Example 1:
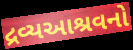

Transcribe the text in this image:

દ્રવ્યઆશ્રવનો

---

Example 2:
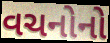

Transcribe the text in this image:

વચનોનો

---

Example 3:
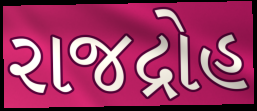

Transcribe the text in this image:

રાજદ્રોહ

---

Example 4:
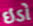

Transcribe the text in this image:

ઇડો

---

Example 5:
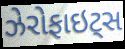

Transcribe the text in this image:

ઝેરોફાઇટ્સ